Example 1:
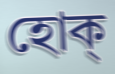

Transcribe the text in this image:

হোক্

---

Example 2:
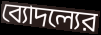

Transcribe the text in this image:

ব্যোদল্যের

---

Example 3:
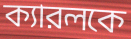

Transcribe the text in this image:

ক্যারলকে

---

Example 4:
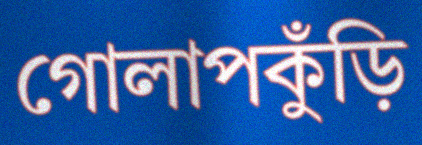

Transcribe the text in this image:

গোলাপকুঁড়ি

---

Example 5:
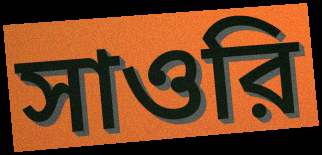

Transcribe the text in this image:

সাওরি